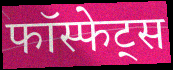
फॉस्फेट्स